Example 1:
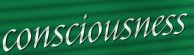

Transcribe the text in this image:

consciousness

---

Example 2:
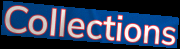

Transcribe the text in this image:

Collections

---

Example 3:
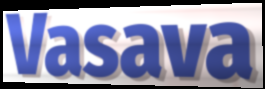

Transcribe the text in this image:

Vasava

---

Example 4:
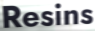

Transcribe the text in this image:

Resins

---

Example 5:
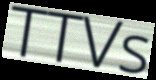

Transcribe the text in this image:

TTVs